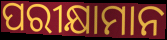
ପରୀକ୍ଷାମାନ